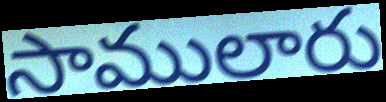
సాములారు